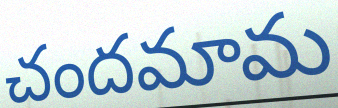
చందమామ